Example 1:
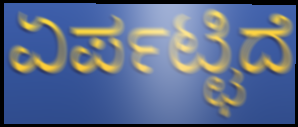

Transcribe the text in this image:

ಏರ್ಪಟ್ಟಿದೆ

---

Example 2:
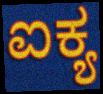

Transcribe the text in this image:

ಐಕ್ಯ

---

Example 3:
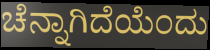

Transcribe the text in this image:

ಚೆನ್ನಾಗಿದೆಯೆಂದು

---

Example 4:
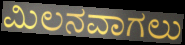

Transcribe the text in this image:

ಮಿಲನವಾಗಲು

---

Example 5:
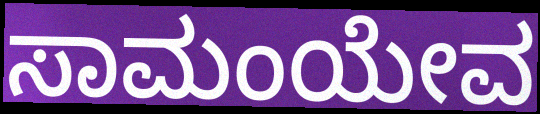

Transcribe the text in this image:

ಸಾಮಂಯೇವ